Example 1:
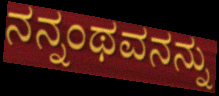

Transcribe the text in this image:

ನನ್ನಂಥವನನ್ನು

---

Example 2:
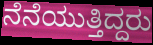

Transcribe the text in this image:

ನೆನೆಯುತ್ತಿದ್ದರು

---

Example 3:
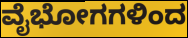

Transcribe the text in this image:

ವೈಭೋಗಗಳಿಂದ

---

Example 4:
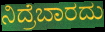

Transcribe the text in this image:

ನಿದ್ರೆಬಾರದು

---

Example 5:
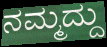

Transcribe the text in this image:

ನಮ್ಮದ್ದು